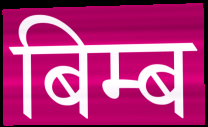
बिम्ब